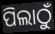
ପିଲାଠୁଁ